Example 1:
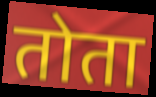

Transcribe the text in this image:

तोता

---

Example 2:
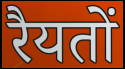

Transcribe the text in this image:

रैयतों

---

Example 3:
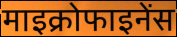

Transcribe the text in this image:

माइक्रोफाइनेंस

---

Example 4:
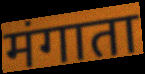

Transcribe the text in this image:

मंगाता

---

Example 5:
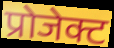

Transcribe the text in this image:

प्रोजेक्ट